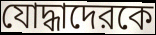
যোদ্ধাদেরকে